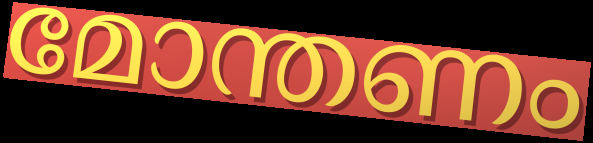
മോന്തണം